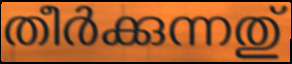
തീർക്കുന്നതു്